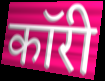
कॉरी